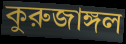
কুরুজাঙ্গল